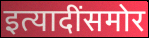
इत्यादींसमोर